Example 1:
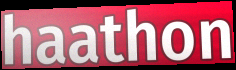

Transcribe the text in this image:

haathon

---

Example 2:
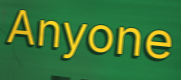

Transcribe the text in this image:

Anyone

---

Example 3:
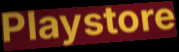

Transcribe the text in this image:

Playstore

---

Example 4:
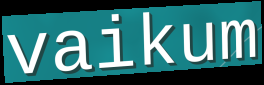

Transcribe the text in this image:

vaikum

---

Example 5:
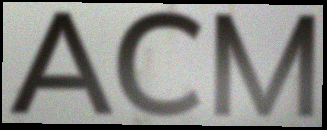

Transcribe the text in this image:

ACM